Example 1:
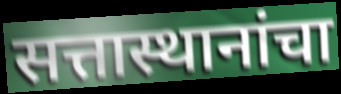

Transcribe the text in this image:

सत्तास्थानांचा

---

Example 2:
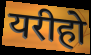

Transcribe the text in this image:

यरीहो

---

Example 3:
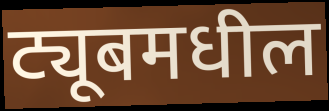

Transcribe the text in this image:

ट्यूबमधील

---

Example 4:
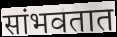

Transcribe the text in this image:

सांभवतात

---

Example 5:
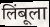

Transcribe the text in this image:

लिंबूला